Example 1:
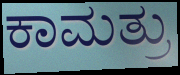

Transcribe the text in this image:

ಕಾಮತ್ರು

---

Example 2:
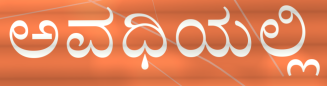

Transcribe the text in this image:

ಅವಧಿಯಲ್ಲಿ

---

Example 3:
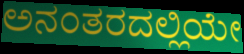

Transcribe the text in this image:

ಅನಂತರದಲ್ಲಿಯೇ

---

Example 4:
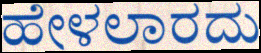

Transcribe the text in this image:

ಹೇಳಲಾರದು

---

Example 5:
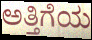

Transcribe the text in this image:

ಅತ್ತಿಗೆಯ